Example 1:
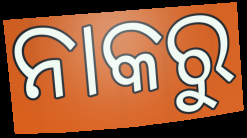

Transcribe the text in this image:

ନାକରୁ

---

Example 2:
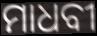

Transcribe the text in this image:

ମାଧବୀ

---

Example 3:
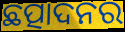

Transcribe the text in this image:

ଛତ୍ପାଦନର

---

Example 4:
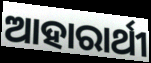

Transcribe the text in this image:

ଆହାରାର୍ଥୀ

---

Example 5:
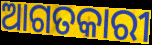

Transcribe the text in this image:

ଆଗତକାରୀ